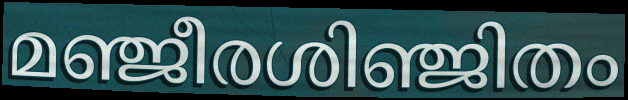
മഞ്ജീരശിഞ്ജിതം